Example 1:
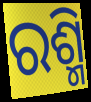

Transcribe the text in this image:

ରଶ୍ମି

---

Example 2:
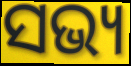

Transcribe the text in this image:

ସଭ୍ୟ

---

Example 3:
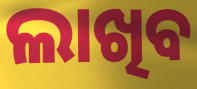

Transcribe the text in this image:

ଲାଖିବ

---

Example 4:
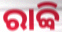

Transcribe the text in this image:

ରାବ୍ବି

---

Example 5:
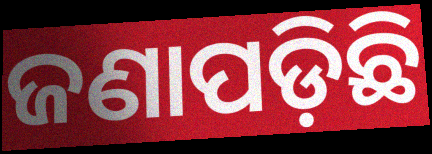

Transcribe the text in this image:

ଜଣାପଡ଼ିଛି